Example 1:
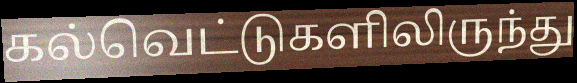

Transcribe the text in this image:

கல்வெட்டுகளிலிருந்து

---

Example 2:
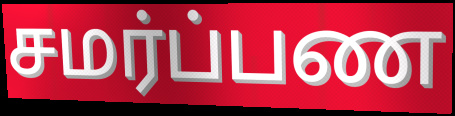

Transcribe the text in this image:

சமர்ப்பண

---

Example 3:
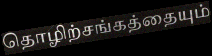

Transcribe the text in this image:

தொழிற்சங்கத்தையும்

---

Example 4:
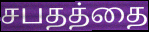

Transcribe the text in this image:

சபதத்தை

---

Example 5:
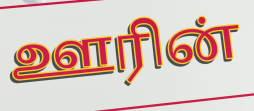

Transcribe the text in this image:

ஊரின்